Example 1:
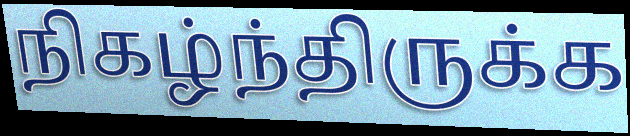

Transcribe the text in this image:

நிகழ்ந்திருக்க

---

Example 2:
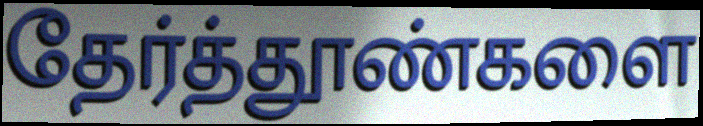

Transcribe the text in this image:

தேர்த்தூண்களை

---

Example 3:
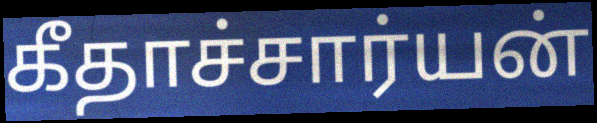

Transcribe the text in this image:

கீதாச்சார்யன்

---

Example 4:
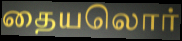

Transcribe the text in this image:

தையலொர்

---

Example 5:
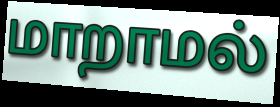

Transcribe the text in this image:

மாறாமல்